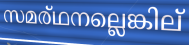
സമര്ഥനല്ലെങ്കില്